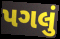
પગલું